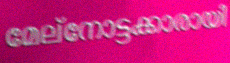
മേല്നോട്ടക്കാരായി